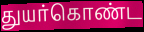
துயர்கொண்ட